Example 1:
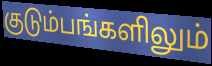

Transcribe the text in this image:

குடும்பங்களிலும்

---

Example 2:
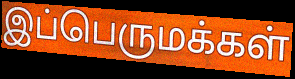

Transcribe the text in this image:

இப்பெருமக்கள்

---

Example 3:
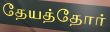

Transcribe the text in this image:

தேயத்தோர்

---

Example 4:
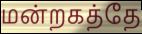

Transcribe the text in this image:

மன்றகத்தே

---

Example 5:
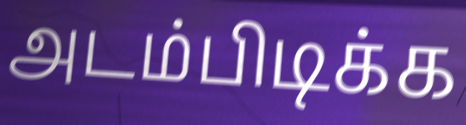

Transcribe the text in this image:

அடம்பிடிக்க